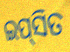
ଇପ୍‍ସିତ